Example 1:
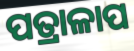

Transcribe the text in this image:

ପତ୍ରାଳାପ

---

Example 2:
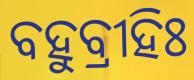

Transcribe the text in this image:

ବହୁବ୍ରୀହିଃ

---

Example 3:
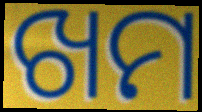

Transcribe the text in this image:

ଖମ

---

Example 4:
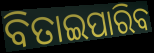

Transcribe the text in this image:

ବିତାଇପାରିବ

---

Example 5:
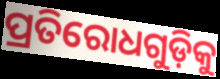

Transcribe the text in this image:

ପ୍ରତିରୋଧଗୁଡ଼ିକୁ